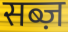
सब्ज़